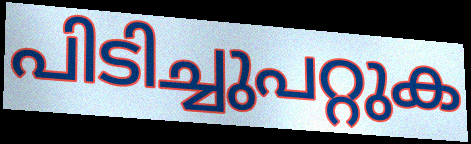
പിടിച്ചുപറ്റുക